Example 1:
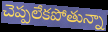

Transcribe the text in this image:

చెప్పలేకపోతున్నా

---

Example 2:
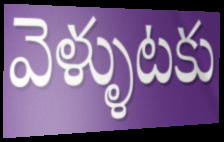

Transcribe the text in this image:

వెళ్ళుటకు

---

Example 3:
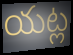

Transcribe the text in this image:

యట్ల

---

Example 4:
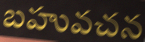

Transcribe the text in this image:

బహువచన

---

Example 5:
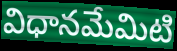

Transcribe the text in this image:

విధానమేమిటి